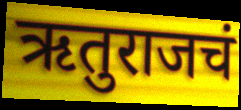
ऋतुराजचं